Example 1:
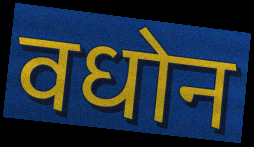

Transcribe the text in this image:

वधोन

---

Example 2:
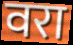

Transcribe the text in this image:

वरा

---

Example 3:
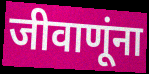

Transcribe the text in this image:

जीवाणूंना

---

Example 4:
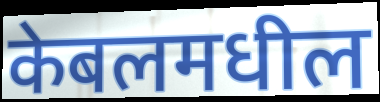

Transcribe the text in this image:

केबलमधील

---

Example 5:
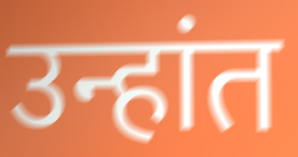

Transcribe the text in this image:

उन्हांत